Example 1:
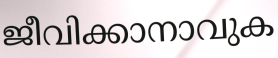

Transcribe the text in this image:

ജീവിക്കാനാവുക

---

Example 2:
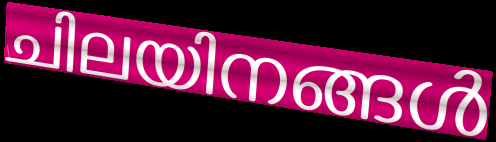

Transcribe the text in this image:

ചിലയിനങ്ങൾ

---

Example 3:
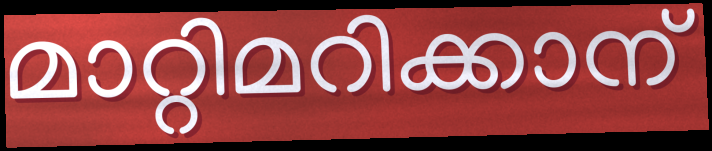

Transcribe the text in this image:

മാറ്റിമറിക്കാന്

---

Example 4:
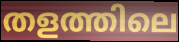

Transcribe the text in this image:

തളത്തിലെ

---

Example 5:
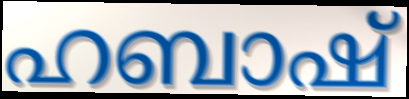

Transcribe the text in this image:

ഹബാഷ്